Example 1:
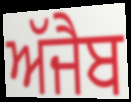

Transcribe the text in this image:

ਅੱਜੈਬ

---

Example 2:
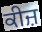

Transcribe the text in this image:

ਕੀਜ਼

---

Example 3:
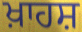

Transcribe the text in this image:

ਖ਼ਾਹਸ਼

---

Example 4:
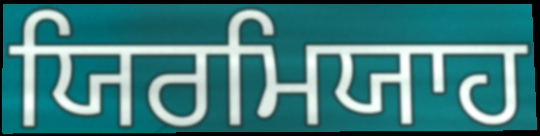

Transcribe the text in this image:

ਯਿਰਮਿਯਾਹ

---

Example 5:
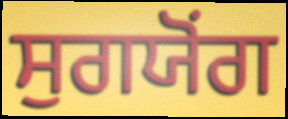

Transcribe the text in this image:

ਸੁਗਯੋਂਗ